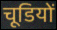
चूडियों